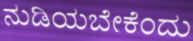
ನುಡಿಯಬೇಕೆಂದು